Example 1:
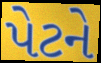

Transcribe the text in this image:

પેટને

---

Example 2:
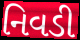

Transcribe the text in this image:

નિવડી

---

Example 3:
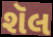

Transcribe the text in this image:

શૅલ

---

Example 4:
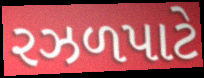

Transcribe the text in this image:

રઝળપાટે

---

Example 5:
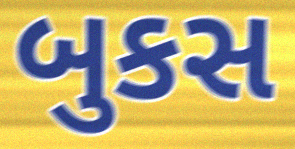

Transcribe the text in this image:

બુકસ